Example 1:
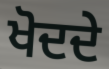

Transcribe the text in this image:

ਖੋਦਦੇ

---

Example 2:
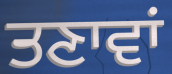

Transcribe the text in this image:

ਤਣਾਵਾਂ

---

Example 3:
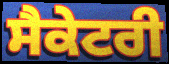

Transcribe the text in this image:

ਸੈਕੇਟਰੀ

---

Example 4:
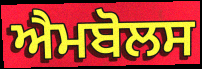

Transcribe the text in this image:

ਐਮਬੋਲਸ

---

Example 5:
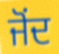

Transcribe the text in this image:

ਜੋਂਦ